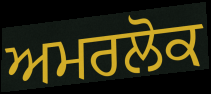
ਅਮਰਲੋਕ